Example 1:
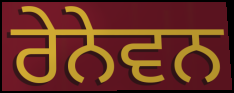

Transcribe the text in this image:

ਰੇਨੇਵਨ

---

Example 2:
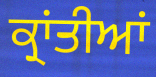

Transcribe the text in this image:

ਕ੍ਰਾਂਤੀਆਂ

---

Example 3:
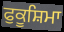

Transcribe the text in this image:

ਫੁਕੂਸ਼ਿਮਾ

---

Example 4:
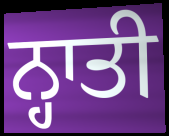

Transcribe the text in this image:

ਨ੍ਹਾਤੀ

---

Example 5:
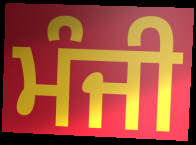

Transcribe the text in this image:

ਮੰਜੀ